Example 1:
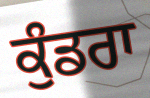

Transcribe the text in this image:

ਕੁੰਡਰਾ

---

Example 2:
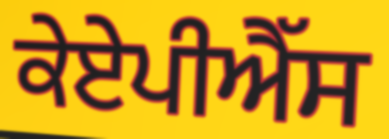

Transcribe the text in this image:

ਕੇਏਪੀਐੱਸ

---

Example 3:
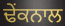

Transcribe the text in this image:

ਢੇਂਕਨਾਲ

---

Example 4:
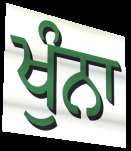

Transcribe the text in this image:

ਖੁੰਨਾ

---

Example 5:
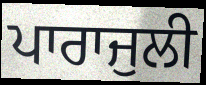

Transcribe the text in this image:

ਪਾਰਾਜੁਲੀ